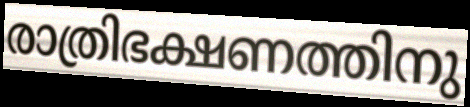
രാത്രിഭക്ഷണത്തിനു